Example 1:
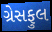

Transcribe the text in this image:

ગ્રેસફુલ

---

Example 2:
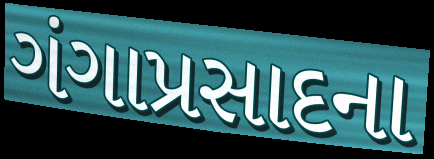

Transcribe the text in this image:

ગંગાપ્રસાદના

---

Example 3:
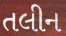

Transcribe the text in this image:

તલીન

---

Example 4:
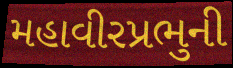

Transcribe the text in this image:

મહાવીરપ્રભુની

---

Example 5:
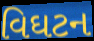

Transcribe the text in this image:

વિઘટન